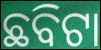
ଛବିଟା